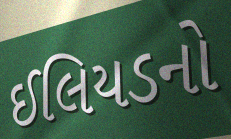
ઈલિયડનો